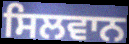
ਸਿਲਵਾਨ